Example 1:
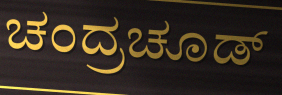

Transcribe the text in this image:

ಚಂದ್ರಚೂಡ್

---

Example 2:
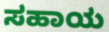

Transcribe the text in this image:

ಸಹಾಯ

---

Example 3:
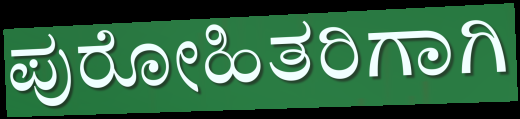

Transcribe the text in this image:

ಪುರೋಹಿತರಿಗಾಗಿ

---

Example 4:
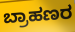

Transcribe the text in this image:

ಬ್ರಾಹಣರ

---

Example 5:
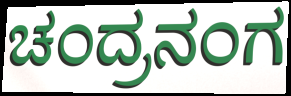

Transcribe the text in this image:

ಚಂದ್ರನಂಗ